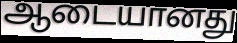
ஆடையானது